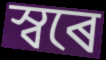
স্বৰে